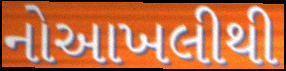
નોઆખલીથી